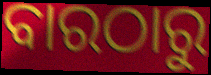
ବାରଠାରୁ